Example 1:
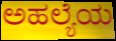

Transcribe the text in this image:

ಅಹಲ್ಯೆಯ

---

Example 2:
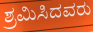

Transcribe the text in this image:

ಶ್ರಮಿಸಿದವರು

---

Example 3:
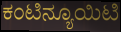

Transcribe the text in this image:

ಕಂಟಿನ್ಯೂಯಿಟಿ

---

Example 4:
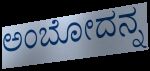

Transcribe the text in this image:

ಅಂಬೋದನ್ನ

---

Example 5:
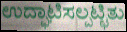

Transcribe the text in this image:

ಉದ್ಘಾಟಿಸಲ್ಪಟ್ಟಿತು